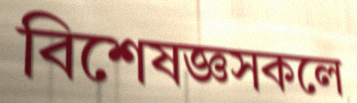
বিশেষজ্ঞসকলে